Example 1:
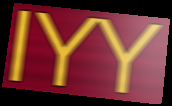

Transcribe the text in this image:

IYY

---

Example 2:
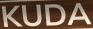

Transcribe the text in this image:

KUDA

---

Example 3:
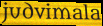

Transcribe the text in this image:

judvimala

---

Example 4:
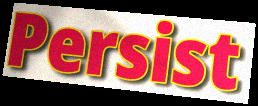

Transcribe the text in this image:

Persist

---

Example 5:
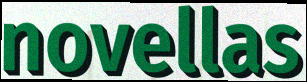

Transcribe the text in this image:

novellas